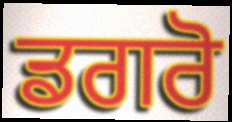
ਡਗਰੋ